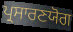
ਪ੍ਰਸਾਰਣਯੋਗ